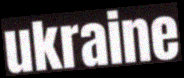
ukraine